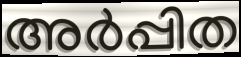
അർപ്പിത